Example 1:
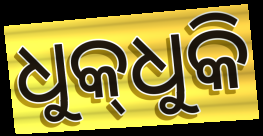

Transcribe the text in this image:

ଧୁକ୍‌ଧୁକି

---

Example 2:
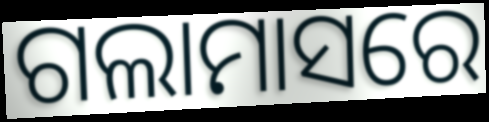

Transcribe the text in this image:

ଗଲାମାସରେ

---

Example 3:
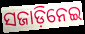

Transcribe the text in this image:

ସଜାଡ଼ିନେଇ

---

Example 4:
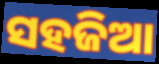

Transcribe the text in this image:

ସହଜିଆ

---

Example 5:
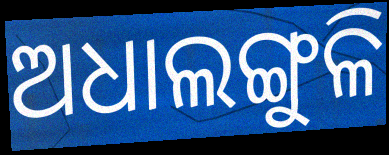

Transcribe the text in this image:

ଅଧାଲଙ୍ଗୁଳି